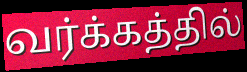
வர்க்கத்தில்